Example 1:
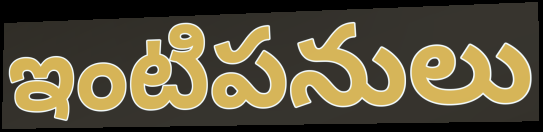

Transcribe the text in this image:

ఇంటిపనులు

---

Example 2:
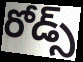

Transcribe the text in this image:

రోడ్స్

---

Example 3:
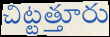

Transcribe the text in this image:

చిట్టత్తూరు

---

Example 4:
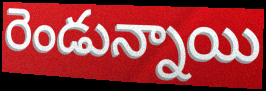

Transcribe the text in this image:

రెండున్నాయి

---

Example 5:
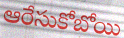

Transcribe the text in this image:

ఆరేసుకోబోయి